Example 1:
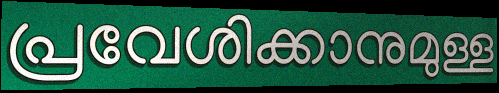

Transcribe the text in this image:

പ്രവേശിക്കാനുമുള്ള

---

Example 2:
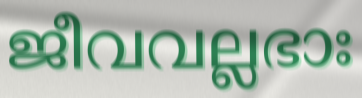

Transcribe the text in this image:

ജീവവല്ലഭാഃ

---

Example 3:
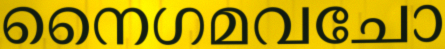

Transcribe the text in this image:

നൈഗമവചോ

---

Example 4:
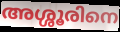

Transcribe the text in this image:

അശ്ശൂരിനെ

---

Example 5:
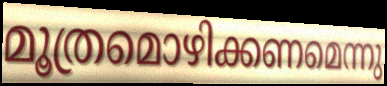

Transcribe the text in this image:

മൂത്രമൊഴിക്കണമെന്നു